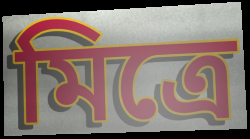
মিত্রে